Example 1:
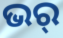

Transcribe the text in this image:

ଭର୍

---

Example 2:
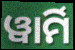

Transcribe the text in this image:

ୱାର୍ମି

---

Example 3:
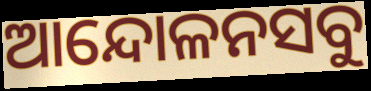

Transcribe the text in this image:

ଆନ୍ଦୋଳନସବୁ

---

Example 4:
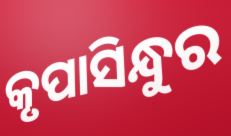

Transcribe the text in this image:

କୃପାସିନ୍ଧୁର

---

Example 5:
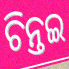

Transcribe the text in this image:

ଚିନ୍ତଇ